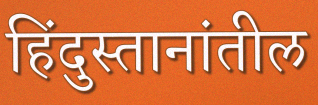
हिंदुस्तानांतील